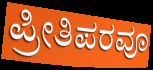
ಪ್ರೀತಿಪರವೂ